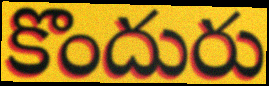
కొందురు